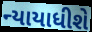
ન્યાયાધીશે